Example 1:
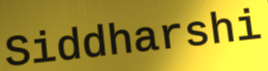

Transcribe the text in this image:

Siddharshi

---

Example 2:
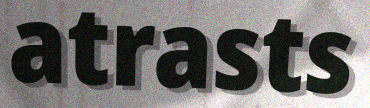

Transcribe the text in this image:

atrasts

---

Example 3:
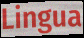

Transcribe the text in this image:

Lingua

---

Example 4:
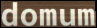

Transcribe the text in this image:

domum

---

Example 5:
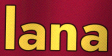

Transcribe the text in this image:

lana